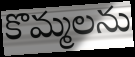
కొమ్మలను